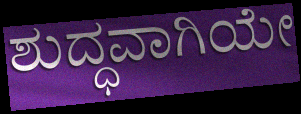
ಶುದ್ಧವಾಗಿಯೇ